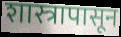
शास्त्रापासून